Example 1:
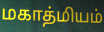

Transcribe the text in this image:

மகாத்மியம்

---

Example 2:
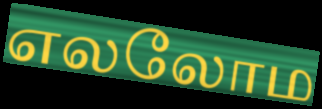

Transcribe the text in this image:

எலலோம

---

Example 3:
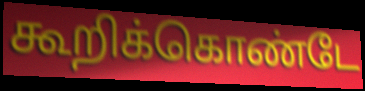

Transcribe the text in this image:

கூறிக்கொண்டே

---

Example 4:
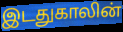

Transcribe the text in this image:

இடதுகாலின்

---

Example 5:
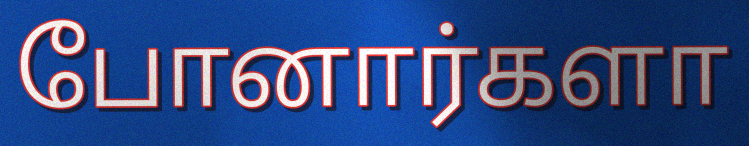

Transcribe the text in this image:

போனார்களா